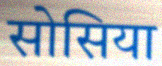
सोसिया